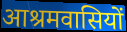
आश्रमवासियों